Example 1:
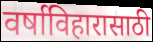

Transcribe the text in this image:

वर्षाविहारासाठी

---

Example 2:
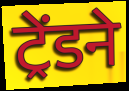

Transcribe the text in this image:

ट्रेंडने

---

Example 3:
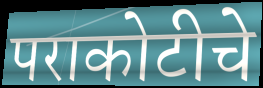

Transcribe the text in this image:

पराकोटीचे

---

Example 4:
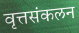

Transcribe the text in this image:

वृत्तसंकलन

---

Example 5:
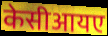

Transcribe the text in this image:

केसीआयए